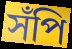
সঁপি